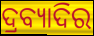
ଦ୍ରବ୍ୟାଦିର